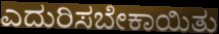
ಎದುರಿಸಬೇಕಾಯಿತು